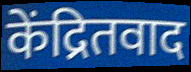
केंद्रितवाद